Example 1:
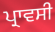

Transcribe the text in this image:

ਪ੍ਰਾਵਸੀ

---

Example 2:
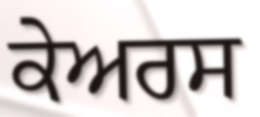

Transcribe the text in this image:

ਕੇਅਰਸ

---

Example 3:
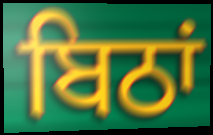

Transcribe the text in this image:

ਬਿਠਾਂ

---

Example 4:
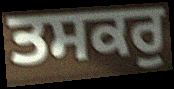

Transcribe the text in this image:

ਤਸਕਰੁ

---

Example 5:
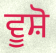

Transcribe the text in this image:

ਵੂਸ਼ੋ